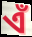
ଏଁ